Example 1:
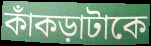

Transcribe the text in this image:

কাঁকড়াটাকে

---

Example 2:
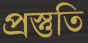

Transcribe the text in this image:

প্রস্তুতি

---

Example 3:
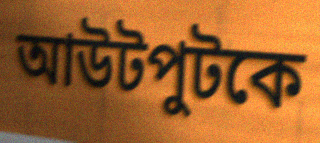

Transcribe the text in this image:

আউটপুটকে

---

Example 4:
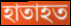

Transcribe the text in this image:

হাতাহত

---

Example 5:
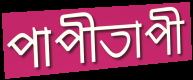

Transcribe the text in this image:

পাপীতাপী